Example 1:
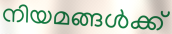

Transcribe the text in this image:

നിയമങ്ങൾക്ക്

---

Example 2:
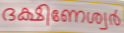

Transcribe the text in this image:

ദക്ഷിണേശ്വർ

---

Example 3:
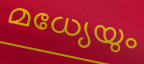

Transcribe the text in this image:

മധ്യേയും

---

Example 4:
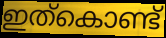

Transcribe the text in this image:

ഇത്കൊണ്ട്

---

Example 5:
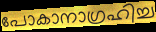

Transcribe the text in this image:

പോകാനാഗ്രഹിച്ച